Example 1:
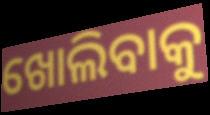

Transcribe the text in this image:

ଖୋଲିବାକୁ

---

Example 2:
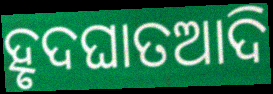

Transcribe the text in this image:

ହୃଦଘାତଆଦି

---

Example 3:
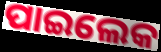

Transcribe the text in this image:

ପାଇଲେକ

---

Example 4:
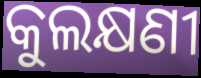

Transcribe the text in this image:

କୁଲକ୍ଷଣୀ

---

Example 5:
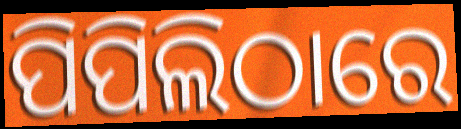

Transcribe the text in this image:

ପିପିଲିଠାରେ